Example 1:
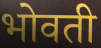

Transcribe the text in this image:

भोवती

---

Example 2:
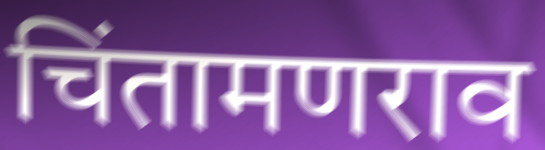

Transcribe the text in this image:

चिंतामणराव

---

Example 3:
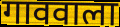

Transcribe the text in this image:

गाववाला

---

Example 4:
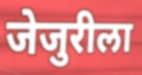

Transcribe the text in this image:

जेजुरीला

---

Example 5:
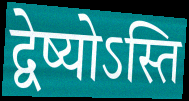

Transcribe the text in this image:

द्वेष्योऽस्ति